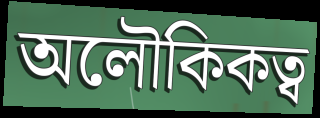
অলৌকিকত্ব